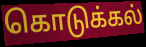
கொடுக்கல்